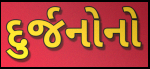
દુર્જનોનો